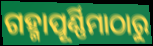
ଗହ୍ମାପୂର୍ଣ୍ଣିମାଠାରୁ